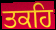
ਤਕਹਿ